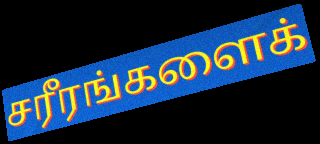
சரீரங்களைக்